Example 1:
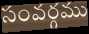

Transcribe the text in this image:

సంవర్గము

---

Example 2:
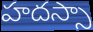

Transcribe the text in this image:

హదస్సా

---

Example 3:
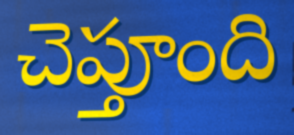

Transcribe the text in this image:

చెప్తూంది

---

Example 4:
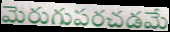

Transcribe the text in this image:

మెరుగుపరచడమే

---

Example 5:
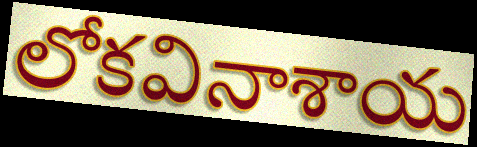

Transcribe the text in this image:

లోకవినాశాయ